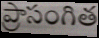
ప్రాసంగిత